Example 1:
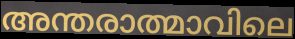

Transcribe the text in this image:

അന്തരാത്മാവിലെ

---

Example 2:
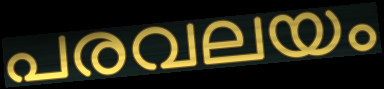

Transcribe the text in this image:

പരവലയം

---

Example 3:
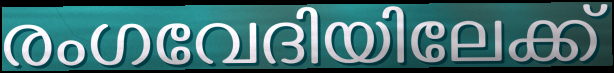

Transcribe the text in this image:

രംഗവേദിയിലേക്ക്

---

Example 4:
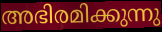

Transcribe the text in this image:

അഭിരമിക്കുന്നു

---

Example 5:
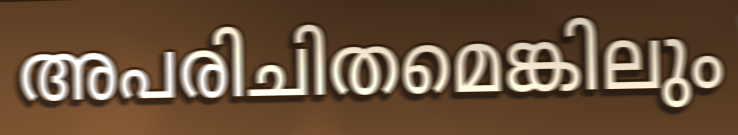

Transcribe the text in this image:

അപരിചിതമെങ്കിലും